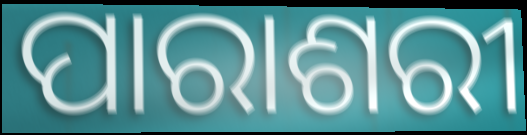
ପାରାଶରୀ